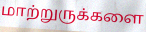
மாற்றுருக்களை